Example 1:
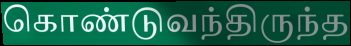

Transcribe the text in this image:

கொண்டுவந்திருந்த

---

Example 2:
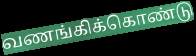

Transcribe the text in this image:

வணங்கிக்கொண்டு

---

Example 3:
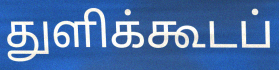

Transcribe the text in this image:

துளிக்கூடப்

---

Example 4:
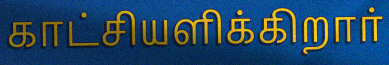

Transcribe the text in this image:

காட்சியளிக்கிறார்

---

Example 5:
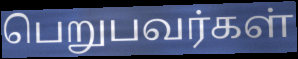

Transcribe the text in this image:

பெறுபவர்கள்